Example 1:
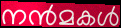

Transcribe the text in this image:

നൻമകൾ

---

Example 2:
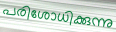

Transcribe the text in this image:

പരിശോധിക്കുന്നു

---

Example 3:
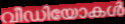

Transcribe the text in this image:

വീഡിയോകൾ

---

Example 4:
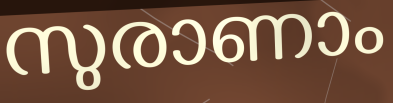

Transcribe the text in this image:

സുരാണാം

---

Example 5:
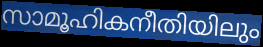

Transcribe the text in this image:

സാമൂഹികനീതിയിലും